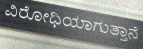
ವಿರೋಧಿಯಾಗುತ್ತಾನೆ